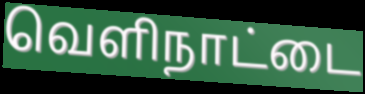
வெளிநாட்டை